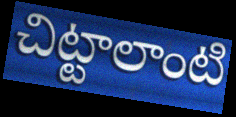
చిట్టాలాంటి